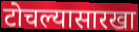
टोचल्यासारखा